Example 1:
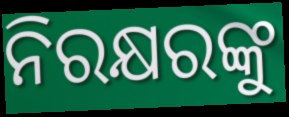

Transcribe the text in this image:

ନିରକ୍ଷରଙ୍କୁ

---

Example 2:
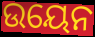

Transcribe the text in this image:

ଉୟେନ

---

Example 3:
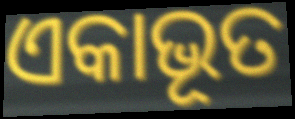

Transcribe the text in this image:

ଏକାଭୂତ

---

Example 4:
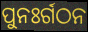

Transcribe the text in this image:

ପୁନଃର୍ଗଠନ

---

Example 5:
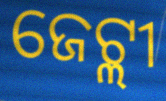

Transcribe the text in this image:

ଜେଟ୍ଲୀ